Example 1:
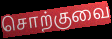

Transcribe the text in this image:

சொற்குவை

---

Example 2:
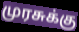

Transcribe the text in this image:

முரசுக்கு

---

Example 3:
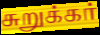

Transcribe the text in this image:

சுறுக்கர்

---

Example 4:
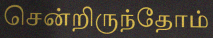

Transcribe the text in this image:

சென்றிருந்தோம்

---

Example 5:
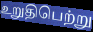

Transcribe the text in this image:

உறுதிபெற்று